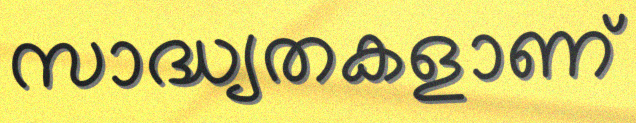
സാദ്ധ്യതകളാണ്